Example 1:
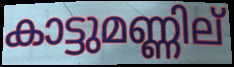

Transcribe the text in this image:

കാട്ടുമണ്ണില്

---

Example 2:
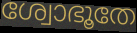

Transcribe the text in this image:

ശ്വോഭൂതേ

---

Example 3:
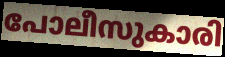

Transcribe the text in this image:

പോലീസുകാരി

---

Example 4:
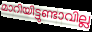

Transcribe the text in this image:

മാറിയിട്ടുണ്ടാവില്ല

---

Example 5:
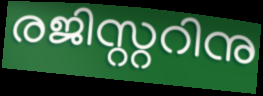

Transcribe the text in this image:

രജിസ്റ്ററിനു